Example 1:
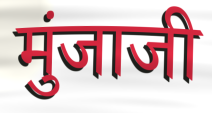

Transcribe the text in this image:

मुंजाजी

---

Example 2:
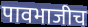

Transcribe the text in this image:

पावभाजीच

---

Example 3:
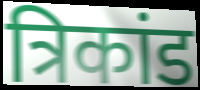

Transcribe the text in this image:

त्रिकांड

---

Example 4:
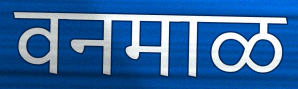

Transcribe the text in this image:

वनमाळ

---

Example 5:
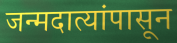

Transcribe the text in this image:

जन्मदात्यांपासून